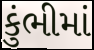
કુંભીમાં